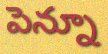
పెన్నూ